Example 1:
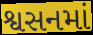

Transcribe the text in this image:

શ્વસનમાં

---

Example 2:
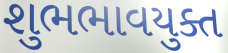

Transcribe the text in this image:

શુભભાવયુક્ત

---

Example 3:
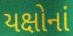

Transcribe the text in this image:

યક્ષોનાં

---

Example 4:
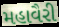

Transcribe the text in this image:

મહાવૈરી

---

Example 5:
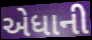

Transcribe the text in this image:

એધાની